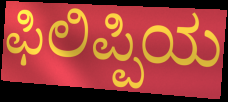
ಫಿಲಿಪ್ಪಿಯ